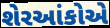
શેરઆંકોએ